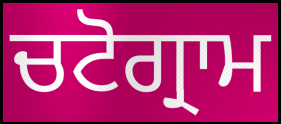
ਚਟੋਗ੍ਰਾਮ